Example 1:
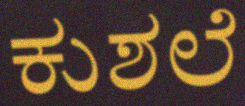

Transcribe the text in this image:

ಕುಶಲೆ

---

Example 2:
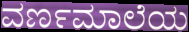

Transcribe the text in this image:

ವರ್ಣಮಾಲೆಯ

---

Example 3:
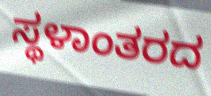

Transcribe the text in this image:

ಸ್ಥಳಾಂತರದ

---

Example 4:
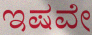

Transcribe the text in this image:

ಇಷವೇ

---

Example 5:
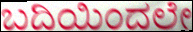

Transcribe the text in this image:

ಬದಿಯಿಂದಲೇ